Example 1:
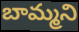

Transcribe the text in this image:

బామ్మని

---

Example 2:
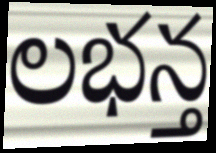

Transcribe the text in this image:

లభన్త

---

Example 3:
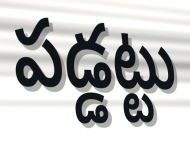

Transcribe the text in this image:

పడ్డట్టు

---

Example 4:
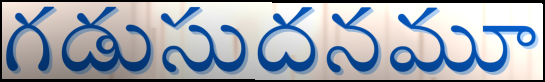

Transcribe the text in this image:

గడుసుదనమూ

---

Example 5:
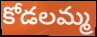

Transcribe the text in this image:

కోడలమ్మ